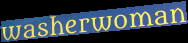
washerwoman